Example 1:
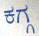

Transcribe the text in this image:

ಕಗ್ಗ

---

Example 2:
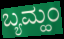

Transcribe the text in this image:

ಬ್ಯಮ್ಹಂ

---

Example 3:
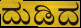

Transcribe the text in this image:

ದುಡಿದ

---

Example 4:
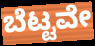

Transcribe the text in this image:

ಬೆಟ್ಟವೇ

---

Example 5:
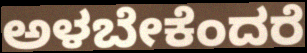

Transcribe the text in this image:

ಅಳಬೇಕೆಂದರೆ